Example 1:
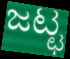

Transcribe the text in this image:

ಜಟ್ಟ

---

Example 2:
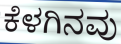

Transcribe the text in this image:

ಕೆಳಗಿನವು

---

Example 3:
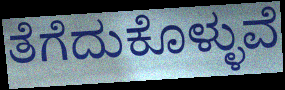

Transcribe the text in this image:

ತೆಗೆದುಕೊಳ್ಳುವೆ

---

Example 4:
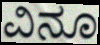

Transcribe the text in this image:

ವಿನೂ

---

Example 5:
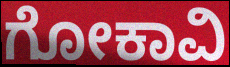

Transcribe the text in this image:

ಗೋಕಾವಿ